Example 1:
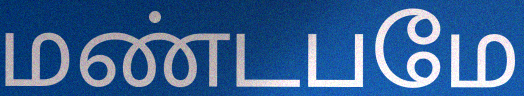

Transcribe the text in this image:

மண்டபமே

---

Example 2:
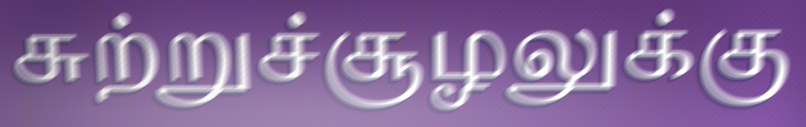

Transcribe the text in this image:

சுற்றுச்சூழலுக்கு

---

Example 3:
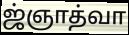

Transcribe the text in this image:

ஜ்ஞாத்வா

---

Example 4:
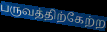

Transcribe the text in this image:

பருவத்திற்கேற்ற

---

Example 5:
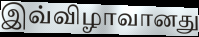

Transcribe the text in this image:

இவ்விழாவானது